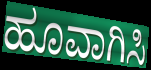
ಹೂವಾಗಿಸಿ